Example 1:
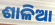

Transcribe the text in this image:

ଶାଳିଆ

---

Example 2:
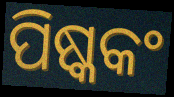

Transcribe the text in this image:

ପିଷ୍କକଂ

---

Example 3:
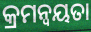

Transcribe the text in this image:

କ୍ରମନ୍ବୟତା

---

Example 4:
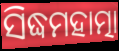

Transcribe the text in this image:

ସିଦ୍ଧମହାତ୍ମା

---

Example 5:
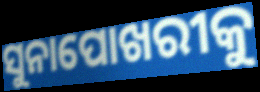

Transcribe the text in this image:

ସୁନାପୋଖରୀକୁ